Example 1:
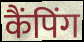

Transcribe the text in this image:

कैंपिंग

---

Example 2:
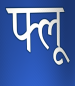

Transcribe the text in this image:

फ्लू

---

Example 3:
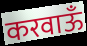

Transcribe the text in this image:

करवाऊँ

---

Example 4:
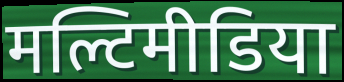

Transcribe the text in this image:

मल्टिमीडिया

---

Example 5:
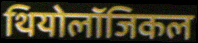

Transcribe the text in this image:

थियोलॉजिकल